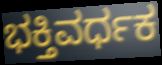
ಭಕ್ತಿವರ್ಧಕ